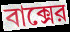
বাক্সের